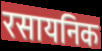
रसायनिक